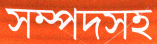
সম্পদসহ